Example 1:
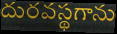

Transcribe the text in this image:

దురవస్థగాను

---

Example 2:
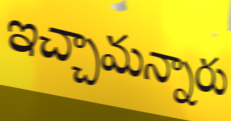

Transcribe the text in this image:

ఇచ్చామన్నారు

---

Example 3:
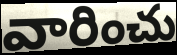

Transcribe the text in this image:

వారించు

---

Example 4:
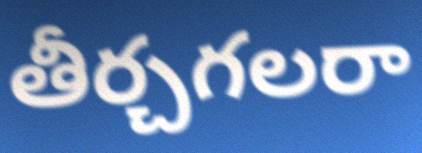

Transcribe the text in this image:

తీర్చగలరా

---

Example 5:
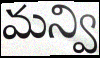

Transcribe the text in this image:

మన్వి